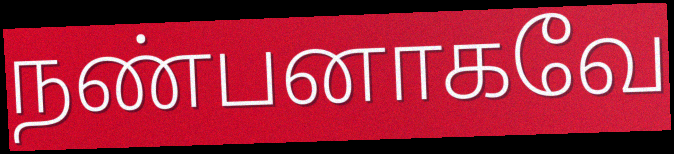
நண்பனாகவே